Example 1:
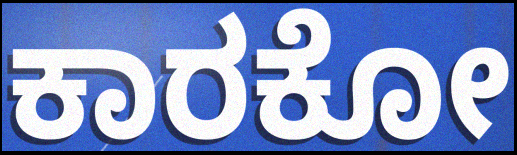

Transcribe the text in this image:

ಕಾರಕೋ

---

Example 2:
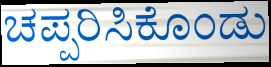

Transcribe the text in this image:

ಚಪ್ಪರಿಸಿಕೊಂಡು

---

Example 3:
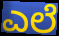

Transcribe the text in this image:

ಎಲೆ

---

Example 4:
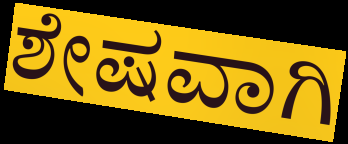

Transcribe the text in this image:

ಶೇಷವಾಗಿ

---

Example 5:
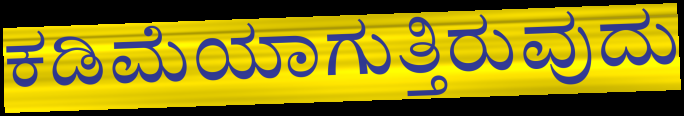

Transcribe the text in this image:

ಕಡಿಮೆಯಾಗುತ್ತಿರುವುದು